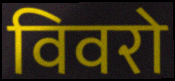
विवरो